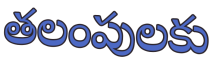
తలంపులకు